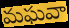
మఘవా